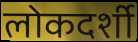
लोकदर्शी